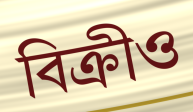
বিক্ৰীও